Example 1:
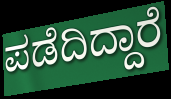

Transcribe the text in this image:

ಪಡೆದಿದ್ದಾರೆ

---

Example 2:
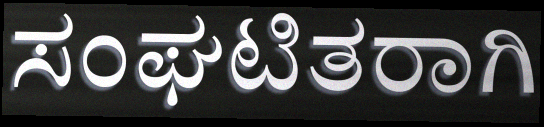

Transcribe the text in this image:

ಸಂಘಟಿತರಾಗಿ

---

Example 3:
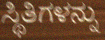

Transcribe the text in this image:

ಸ್ಥಿತಿಗಳನ್ನು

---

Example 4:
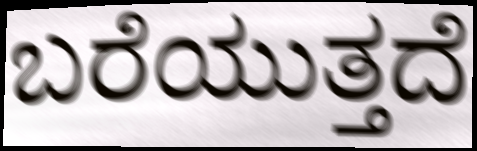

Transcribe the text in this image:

ಬರೆಯುತ್ತದೆ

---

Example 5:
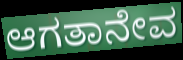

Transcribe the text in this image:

ಆಗತಾನೇವ